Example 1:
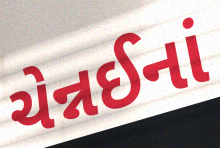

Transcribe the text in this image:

ચેન્નઈનાં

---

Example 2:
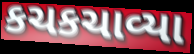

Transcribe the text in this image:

કચકચાવ્યા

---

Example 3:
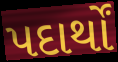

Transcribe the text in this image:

પદાર્થોં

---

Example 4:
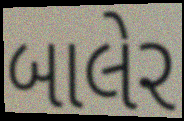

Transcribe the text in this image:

બાલેર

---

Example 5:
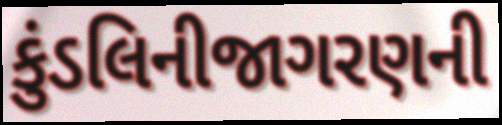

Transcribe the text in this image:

કુંડલિનીજાગરણની